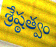
శ్రేష్ఠత్వం